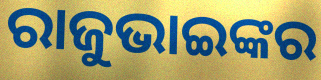
ରାଜୁଭାଇଙ୍କର